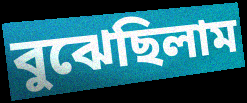
বুঝেছিলাম